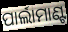
ପାର୍ଲାମାଣ୍ଟ